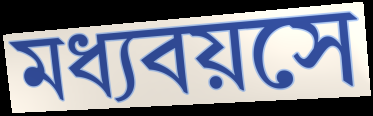
মধ্যবয়সে